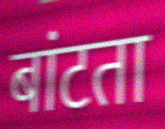
बांटता